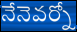
నేనెవర్నో